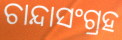
ଚାନ୍ଦାସଂଗ୍ରହ